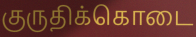
குருதிக்கொடை